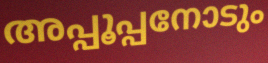
അപ്പൂപ്പനോടും